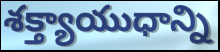
శక్త్యాయుధాన్ని